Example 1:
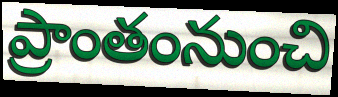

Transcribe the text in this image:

ప్రాంతంనుంచి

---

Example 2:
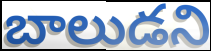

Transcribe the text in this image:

బాలుడని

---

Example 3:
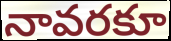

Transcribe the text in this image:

నావరకూ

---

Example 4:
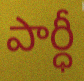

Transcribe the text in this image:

పార్ధీ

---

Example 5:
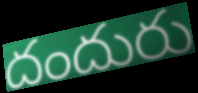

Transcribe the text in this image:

దందురు